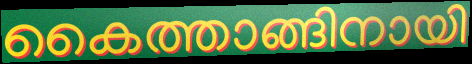
കൈത്താങ്ങിനായി